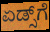
ಏಡ್ಸ್‌ಗೆ